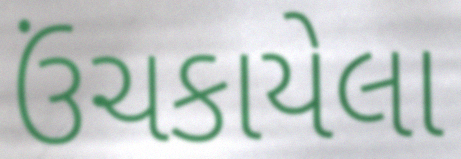
ઉંચકાયેલા